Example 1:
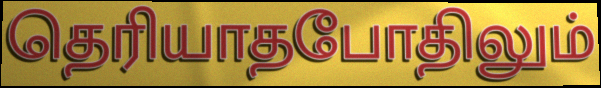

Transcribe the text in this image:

தெரியாதபோதிலும்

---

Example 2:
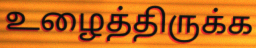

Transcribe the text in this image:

உழைத்திருக்க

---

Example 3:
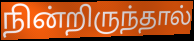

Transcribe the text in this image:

நின்றிருந்தால்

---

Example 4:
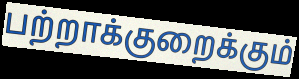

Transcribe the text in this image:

பற்றாக்குறைக்கும்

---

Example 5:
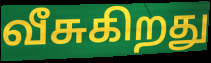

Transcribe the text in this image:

வீசுகிறது